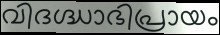
വിദഗ്ദ്ധാഭിപ്രായം